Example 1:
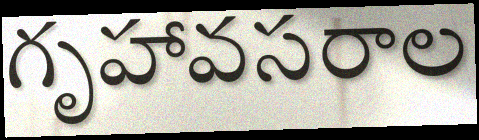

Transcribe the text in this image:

గృహావసరాల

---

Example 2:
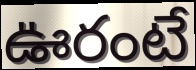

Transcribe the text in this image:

ఊరంటే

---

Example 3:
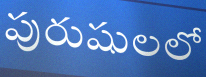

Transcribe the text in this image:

పురుషులలో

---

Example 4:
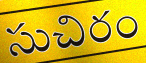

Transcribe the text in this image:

సుచిరం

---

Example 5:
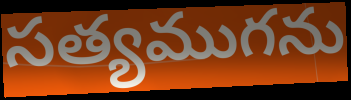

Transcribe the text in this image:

సత్యముగను